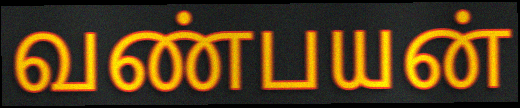
வண்பயன்